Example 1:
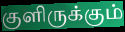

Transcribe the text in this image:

குளிருக்கும்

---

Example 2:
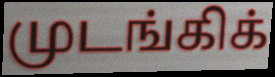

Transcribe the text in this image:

முடங்கிக்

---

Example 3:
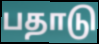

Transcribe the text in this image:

பதாடு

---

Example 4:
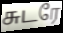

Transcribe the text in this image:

சுடரே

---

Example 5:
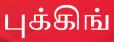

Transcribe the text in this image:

புக்கிங்